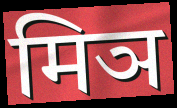
मिञ